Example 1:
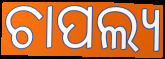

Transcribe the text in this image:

ଚାପଲ୍ୟ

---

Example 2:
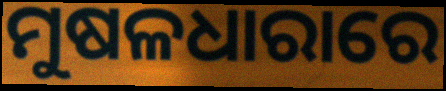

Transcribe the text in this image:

ମୁଷଳଧାରାରେ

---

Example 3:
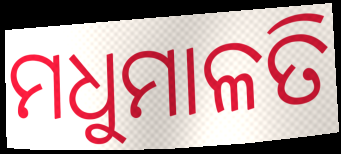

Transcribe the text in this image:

ମଧୁମାଳତି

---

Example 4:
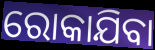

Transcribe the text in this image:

ରୋକାଯିବା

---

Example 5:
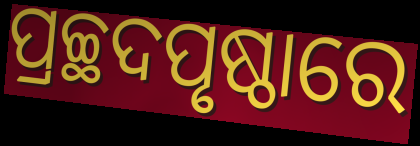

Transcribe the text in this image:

ପ୍ରଚ୍ଛଦପୃଷ୍ଠାରେ